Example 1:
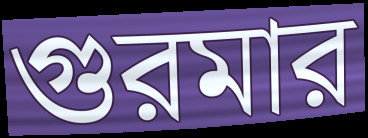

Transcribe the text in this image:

গুরমার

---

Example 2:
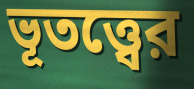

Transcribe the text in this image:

ভূতত্ত্বের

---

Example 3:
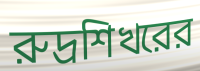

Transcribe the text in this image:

রুদ্রশিখরের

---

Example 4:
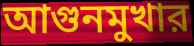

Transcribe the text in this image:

আগুনমুখার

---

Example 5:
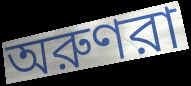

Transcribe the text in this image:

অরুণরা